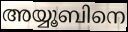
അയ്യൂബിനെ